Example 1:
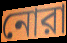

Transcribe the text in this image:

নোরা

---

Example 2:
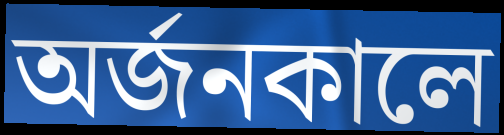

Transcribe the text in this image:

অর্জনকালে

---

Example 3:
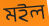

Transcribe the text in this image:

মইল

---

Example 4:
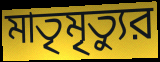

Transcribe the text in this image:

মাতৃমৃত্যুর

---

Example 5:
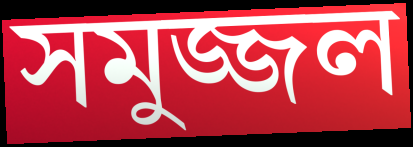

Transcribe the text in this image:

সমুজ্জল